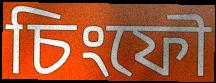
চিংফৌ